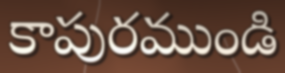
కాపురముండి